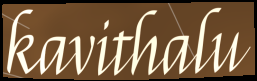
kavithalu